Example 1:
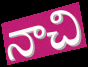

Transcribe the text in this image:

నాచి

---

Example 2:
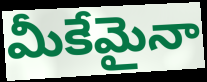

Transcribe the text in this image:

మీకేమైనా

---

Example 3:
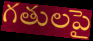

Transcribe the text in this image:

గతులపై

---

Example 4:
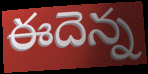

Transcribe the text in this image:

ఈదెన్న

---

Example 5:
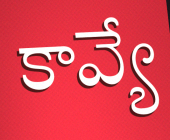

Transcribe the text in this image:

కావ్యే